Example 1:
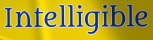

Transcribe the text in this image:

Intelligible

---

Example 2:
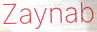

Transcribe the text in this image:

Zaynab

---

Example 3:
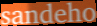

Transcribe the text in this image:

sandeho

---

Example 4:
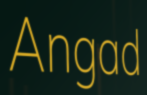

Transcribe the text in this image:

Angad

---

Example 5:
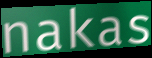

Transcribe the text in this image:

nakas